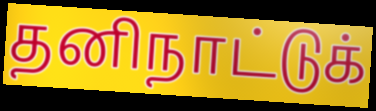
தனிநாட்டுக்